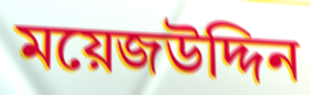
ময়েজউদ্দিন